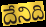
దేనిది